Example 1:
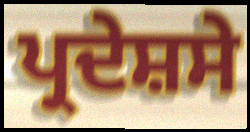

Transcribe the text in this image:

ਪ੍ਰਦੇਸ਼ਸੇ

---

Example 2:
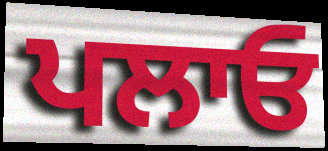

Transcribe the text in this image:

ਪਲਾਓ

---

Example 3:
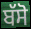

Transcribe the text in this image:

ਬੱਸੋ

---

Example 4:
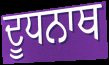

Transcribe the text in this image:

ਦੂਧਨਾਥ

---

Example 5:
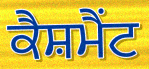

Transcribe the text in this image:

ਕੈਸ਼ਮੈਂਟ